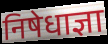
निषेधाज्ञा